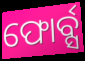
ଫୋର୍ବ୍ସ